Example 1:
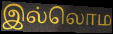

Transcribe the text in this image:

இல்லொம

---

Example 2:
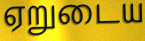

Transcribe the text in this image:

ஏறுடைய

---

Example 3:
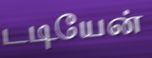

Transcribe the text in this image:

டடியேன்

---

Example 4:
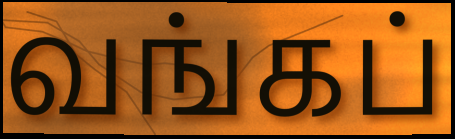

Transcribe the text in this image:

வங்கப்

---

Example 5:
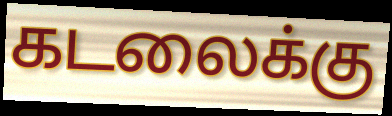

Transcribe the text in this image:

கடலைக்கு